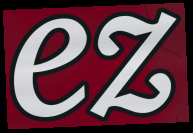
ez